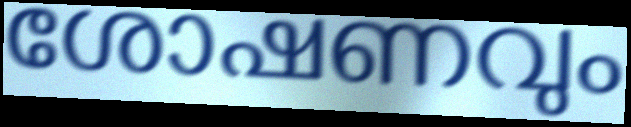
ശോഷണവും